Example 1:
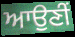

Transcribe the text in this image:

ਆਉਣੀੰ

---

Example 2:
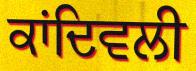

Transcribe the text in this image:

ਕਾਂਦਿਵਲੀ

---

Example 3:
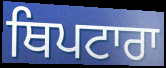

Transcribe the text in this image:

ਥਿਪਟਾਰਾ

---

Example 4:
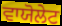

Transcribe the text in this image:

ਵਾਯੋਲੇਟ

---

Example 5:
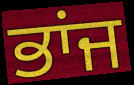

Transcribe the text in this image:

ਭਾਂਜ